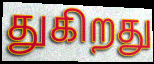
துகிறது